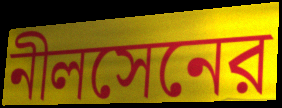
নীলসেনের